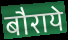
बौराये